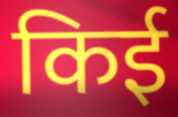
किई